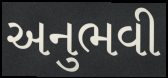
અનુભવી